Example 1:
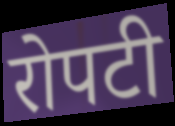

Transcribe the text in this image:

रोपटी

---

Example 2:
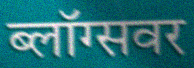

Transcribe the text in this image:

ब्लॉग्सवर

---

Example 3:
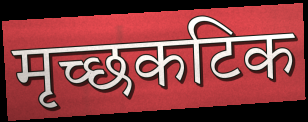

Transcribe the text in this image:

मृच्छकटिक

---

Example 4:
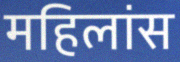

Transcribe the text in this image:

महिलांस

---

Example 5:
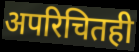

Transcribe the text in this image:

अपरिचितही